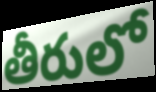
తీరులో